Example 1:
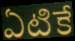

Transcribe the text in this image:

ఏటికే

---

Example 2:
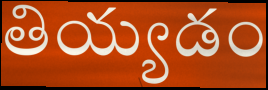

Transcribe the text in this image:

తియ్యడం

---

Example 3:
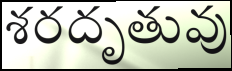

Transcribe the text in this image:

శరదృతువు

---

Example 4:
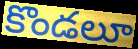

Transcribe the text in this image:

కొండలూ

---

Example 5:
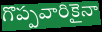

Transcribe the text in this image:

గొప్పవారికైనా